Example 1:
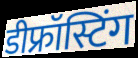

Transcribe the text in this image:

डीफ्रॉस्टिंग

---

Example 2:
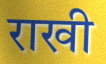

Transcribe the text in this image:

राखी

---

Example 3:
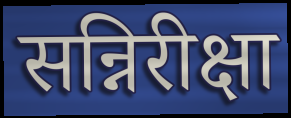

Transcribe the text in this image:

सन्निरीक्षा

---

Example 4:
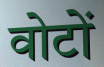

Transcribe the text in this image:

वोटों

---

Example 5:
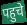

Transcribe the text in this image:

पहुचे